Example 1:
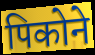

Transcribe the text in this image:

पिकोने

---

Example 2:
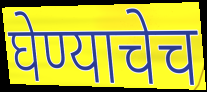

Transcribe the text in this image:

घेण्याचेच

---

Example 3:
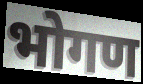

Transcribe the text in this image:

भोगण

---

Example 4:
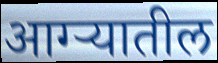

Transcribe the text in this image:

आग्ऱ्यातील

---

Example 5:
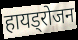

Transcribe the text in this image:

हायड्रोजन